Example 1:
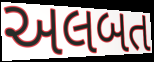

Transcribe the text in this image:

અલબત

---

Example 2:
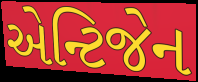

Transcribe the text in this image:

એન્ટિજેન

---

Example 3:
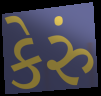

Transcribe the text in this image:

કેરું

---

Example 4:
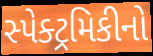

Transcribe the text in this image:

સ્પેક્ટ્રમિકીનો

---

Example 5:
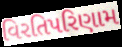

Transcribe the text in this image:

વિરતિપરિણામ